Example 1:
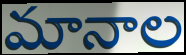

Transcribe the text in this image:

మానాల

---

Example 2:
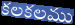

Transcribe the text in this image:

కలకలము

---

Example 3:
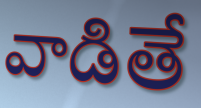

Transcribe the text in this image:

వాడితే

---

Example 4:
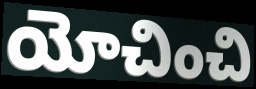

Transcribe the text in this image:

యోచించి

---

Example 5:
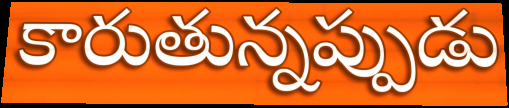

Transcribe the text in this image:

కారుతున్నప్పుడు